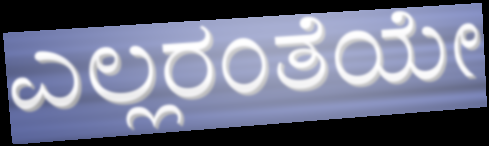
ಎಲ್ಲರಂತೆಯೇ